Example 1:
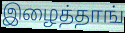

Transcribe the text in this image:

இழைத்தாங்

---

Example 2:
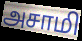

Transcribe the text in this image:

அசாமி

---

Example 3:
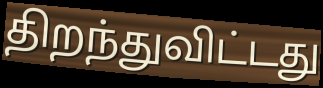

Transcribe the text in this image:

திறந்துவிட்டது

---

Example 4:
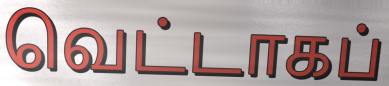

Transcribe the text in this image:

வெட்டாகப்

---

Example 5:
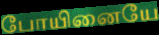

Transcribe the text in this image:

போயினையே